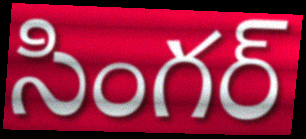
సింగర్